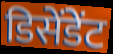
डिसेंडेंट